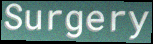
Surgery